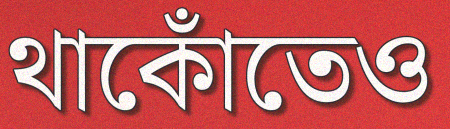
থাকোঁতেও